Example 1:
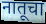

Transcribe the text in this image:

नातूचा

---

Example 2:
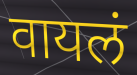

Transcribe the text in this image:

वायलं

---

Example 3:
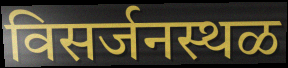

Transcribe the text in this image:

विसर्जनस्थळ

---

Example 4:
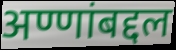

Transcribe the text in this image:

अण्णांबद्दल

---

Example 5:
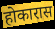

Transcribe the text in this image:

होकारास